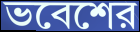
ভবেশের